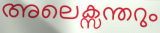
അലെക്സന്തറും